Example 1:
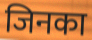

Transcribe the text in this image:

जिनका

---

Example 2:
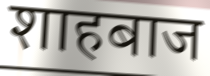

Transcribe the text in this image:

शाहबाज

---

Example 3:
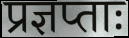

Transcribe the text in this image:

प्रज्ञप्ताः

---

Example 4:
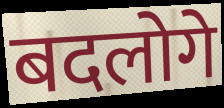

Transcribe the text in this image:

बदलोगे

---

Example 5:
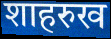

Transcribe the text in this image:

शाहरुख